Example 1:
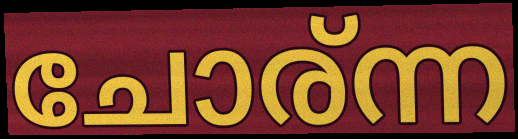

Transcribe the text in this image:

ചോര്ന്ന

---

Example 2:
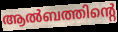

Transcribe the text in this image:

ആൽബത്തിന്റെ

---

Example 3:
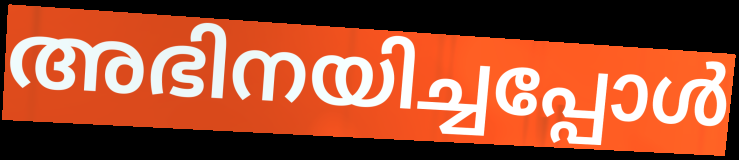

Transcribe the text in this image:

അഭിനയിച്ചപ്പോൾ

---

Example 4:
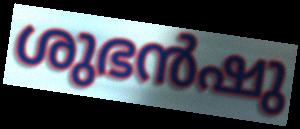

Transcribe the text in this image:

ശുഭൻഷു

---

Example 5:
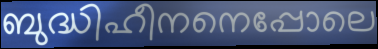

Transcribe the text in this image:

ബുദ്ധിഹീനനെപ്പോലെ